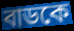
বাডকে